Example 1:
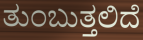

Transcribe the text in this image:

ತುಂಬುತ್ತಲಿದೆ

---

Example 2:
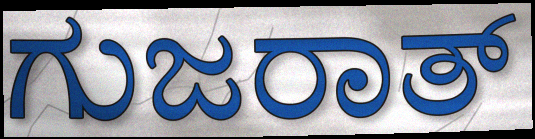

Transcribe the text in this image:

ಗುಜರಾತ್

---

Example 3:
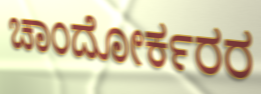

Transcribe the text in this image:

ಚಾಂದೋರ್ಕರರ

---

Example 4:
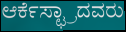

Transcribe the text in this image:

ಆರ್ಕೆಸ್ಟ್ರಾದವರು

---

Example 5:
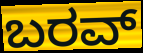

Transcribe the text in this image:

ಬರವ್